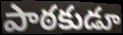
పాఠకుడూ